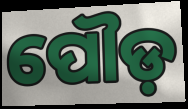
ପୌଡ଼